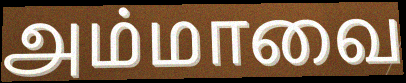
அம்மாவை